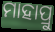
ମାହାପ୍ରୁ